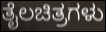
ತೈಲಚಿತ್ರಗಳು